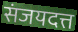
संजयदत्त